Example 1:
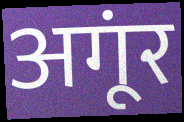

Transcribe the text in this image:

अगूंर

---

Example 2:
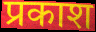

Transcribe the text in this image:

प्रकाश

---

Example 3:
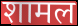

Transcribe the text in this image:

शामल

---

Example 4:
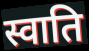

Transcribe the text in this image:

स्वाति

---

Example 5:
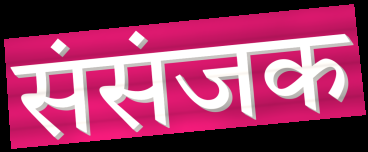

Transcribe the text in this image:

संसंजक